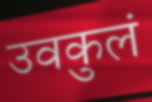
उवकुलं